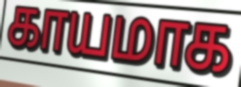
காயமாக